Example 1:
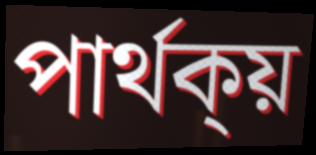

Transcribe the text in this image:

পাৰ্থক্য়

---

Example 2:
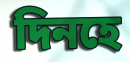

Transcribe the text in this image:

দিনহে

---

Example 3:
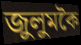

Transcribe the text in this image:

জুলুমকৈ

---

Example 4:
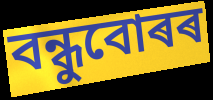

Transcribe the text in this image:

বন্ধুবোৰৰ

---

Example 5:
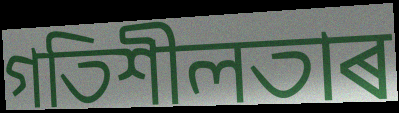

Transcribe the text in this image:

গতিশীলতাৰ